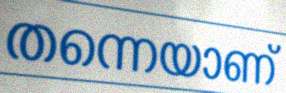
തന്നെയാണ്